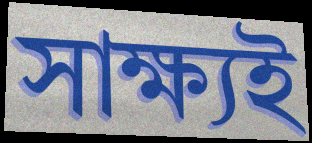
সাক্ষ্যই